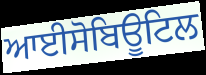
ਆਈਸੋਬਿਊਟਿਲ